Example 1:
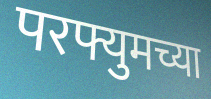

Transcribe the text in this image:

परफ्युमच्या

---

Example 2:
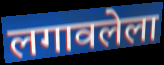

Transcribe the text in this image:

लगावलेला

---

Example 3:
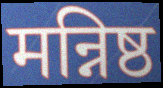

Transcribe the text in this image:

मन्निष्ठ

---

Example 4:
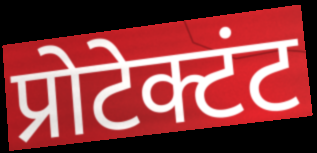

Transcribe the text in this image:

प्रोटेक्टंट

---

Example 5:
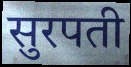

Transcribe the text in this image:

सुरपती